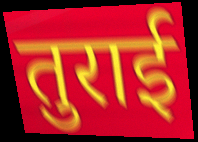
तुराई